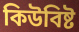
কিউবিষ্ট